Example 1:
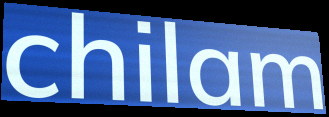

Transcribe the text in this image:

chilam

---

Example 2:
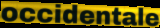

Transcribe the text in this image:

occidentale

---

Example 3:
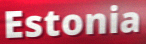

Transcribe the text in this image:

Estonia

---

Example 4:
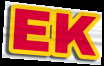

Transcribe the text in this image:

EK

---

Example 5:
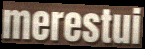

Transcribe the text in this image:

merestui